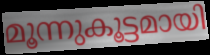
മൂന്നുകൂട്ടമായി